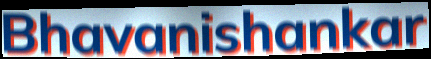
Bhavanishankar